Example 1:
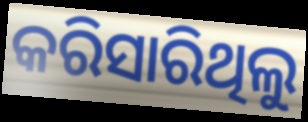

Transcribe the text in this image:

କରିସାରିଥିଲୁ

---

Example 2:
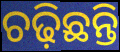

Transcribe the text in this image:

ଚଢ଼ିଛନ୍ତି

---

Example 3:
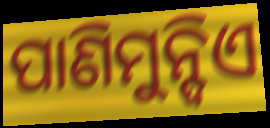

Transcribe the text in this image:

ପାଣିମୁନ୍ଦିଏ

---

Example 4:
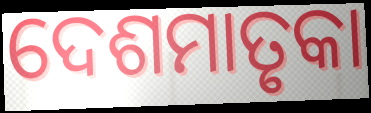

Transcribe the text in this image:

ଦେଶମାତୃକା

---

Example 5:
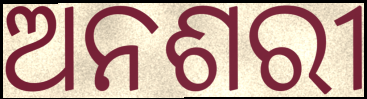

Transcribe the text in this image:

ଅନଶରୀ